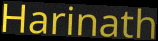
Harinath